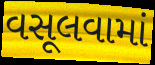
વસૂલવામાં